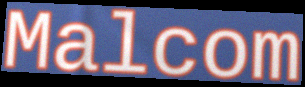
Malcom